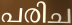
പരിച